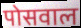
पोसवाल